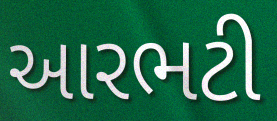
આરભટી